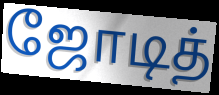
ஜோடித்